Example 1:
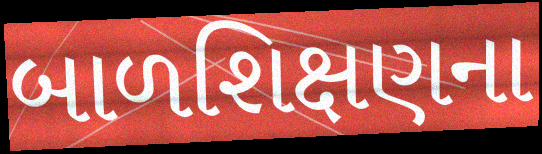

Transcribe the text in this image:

બાળશિક્ષણના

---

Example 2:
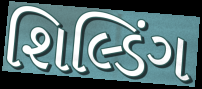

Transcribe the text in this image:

શિલ્ડિંગ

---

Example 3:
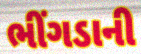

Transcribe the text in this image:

ભીંગડાની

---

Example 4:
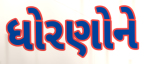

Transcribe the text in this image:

ધોરણોને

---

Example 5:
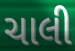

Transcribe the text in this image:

ચાલી